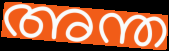
അന്ത